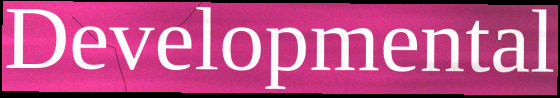
Developmental